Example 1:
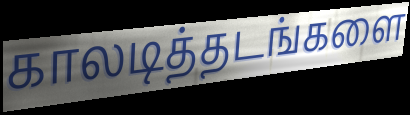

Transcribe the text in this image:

காலடித்தடங்களை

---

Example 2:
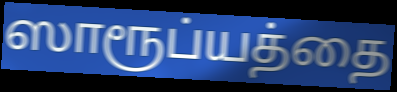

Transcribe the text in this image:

ஸாரூப்யத்தை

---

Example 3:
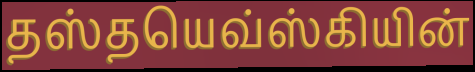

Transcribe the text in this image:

தஸ்தயெவ்ஸ்கியின்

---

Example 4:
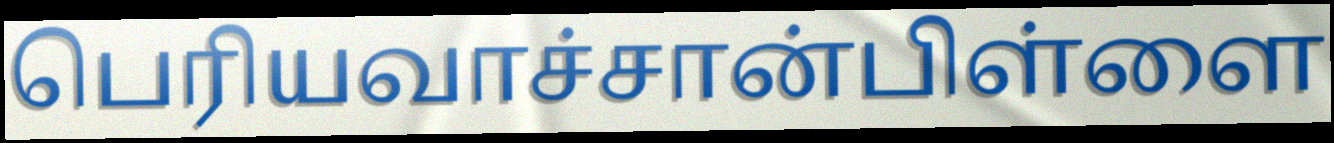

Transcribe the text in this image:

பெரியவாச்சான்பிள்ளை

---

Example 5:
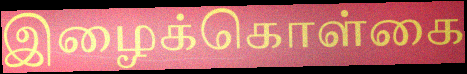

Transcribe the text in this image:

இழைக்கொள்கை